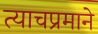
त्याचप्रमाने